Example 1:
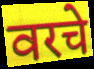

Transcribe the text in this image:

वरचे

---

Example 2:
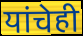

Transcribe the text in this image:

यांचेही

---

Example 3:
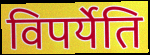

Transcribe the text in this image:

विपर्येति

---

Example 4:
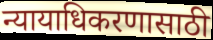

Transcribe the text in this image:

न्यायाधिकरणासाठी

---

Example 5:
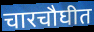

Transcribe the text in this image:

चारचौघीत